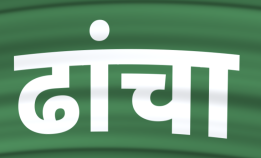
ढांचा